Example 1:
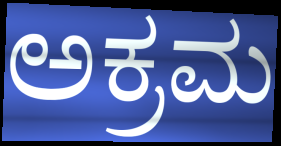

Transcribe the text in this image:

ಅಕ್ರಮ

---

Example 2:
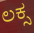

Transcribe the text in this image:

ಲಕ್ಸ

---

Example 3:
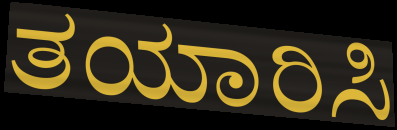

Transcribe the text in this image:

ತಯಾರಿಸಿ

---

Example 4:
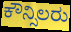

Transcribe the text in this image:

ಕೌನ್ಸಿಲರು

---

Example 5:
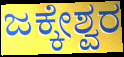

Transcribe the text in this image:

ಜಕ್ಕೇಶ್ವರ